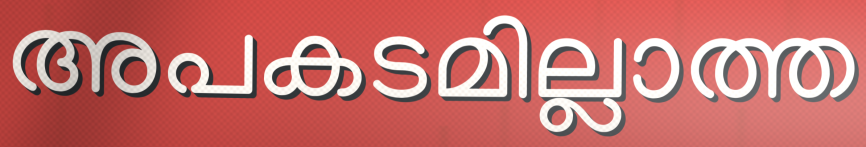
അപകടമില്ലാത്ത